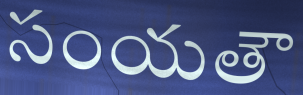
సంయతౌ